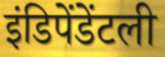
इंडिपेंडेंटली